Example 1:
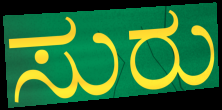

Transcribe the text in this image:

ಸುರು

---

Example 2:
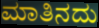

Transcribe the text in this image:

ಮಾತಿನದು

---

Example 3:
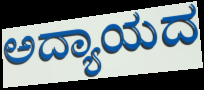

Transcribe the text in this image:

ಅದ್ಯಾಯದ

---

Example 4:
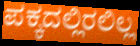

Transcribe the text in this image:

ಪಕ್ಕದಲ್ಲಿರಲಿಲ್ಲ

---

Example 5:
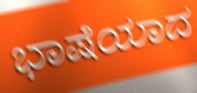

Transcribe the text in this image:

ಭಾಷೆಯಾದ